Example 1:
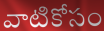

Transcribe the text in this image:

వాటికోసం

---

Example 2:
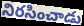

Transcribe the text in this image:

నిరసించాడు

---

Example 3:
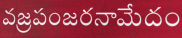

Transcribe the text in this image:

వజ్రపంజరనామేదం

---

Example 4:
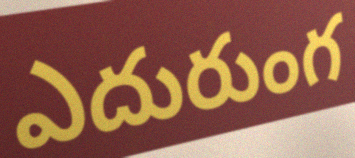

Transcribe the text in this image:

ఎదురుంగ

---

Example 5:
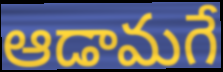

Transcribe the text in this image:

ఆడామగే